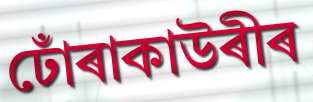
ঢোঁৰাকাউৰীৰ